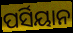
ପର୍ସିୟାନ